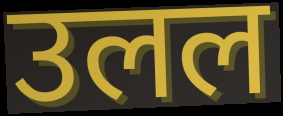
उलल